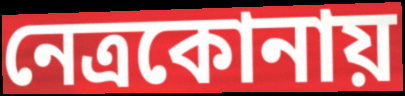
নেত্রকোনায়